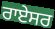
ਰਾਏਸਰ